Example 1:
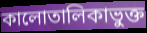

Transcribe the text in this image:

কালোতালিকাভুক্ত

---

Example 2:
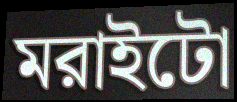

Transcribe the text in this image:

মরাইটো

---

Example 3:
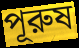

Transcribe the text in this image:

পূরুষ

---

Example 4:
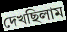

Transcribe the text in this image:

দেখছিলাম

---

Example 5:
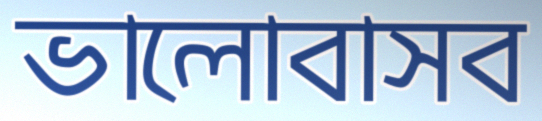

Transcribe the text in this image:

ভালোবাসব